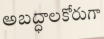
అబద్ధాలకోరుగా